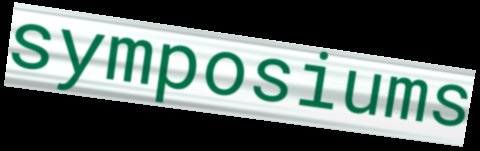
symposiums